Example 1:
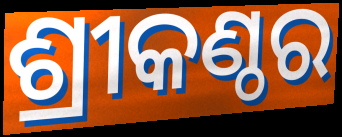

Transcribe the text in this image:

ଶ୍ରୀକଣ୍ଠର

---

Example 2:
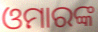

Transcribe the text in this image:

ଓମାରଙ୍କ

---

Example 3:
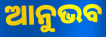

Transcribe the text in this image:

ଆନୁଭବ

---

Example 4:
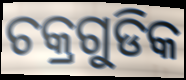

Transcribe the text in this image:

ଚକ୍ରଗୁଡିକ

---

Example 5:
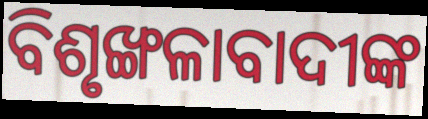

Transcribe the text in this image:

ବିଶୃଙ୍ଖଳାବାଦୀଙ୍କ